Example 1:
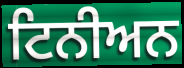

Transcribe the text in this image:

ਟਿਨੀਅਨ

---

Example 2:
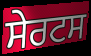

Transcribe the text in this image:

ਸੇਰਟਸ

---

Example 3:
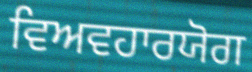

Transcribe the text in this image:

ਵਿਅਵਹਾਰਯੋਗ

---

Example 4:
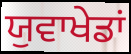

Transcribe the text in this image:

ਯੁਵਾਖੇਡਾਂ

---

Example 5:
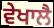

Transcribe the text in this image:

ਵੇਖਾਲੈ